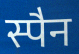
स्पैन